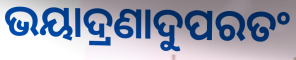
ଭୟାଦ୍ରଣାଦୁପରତଂ